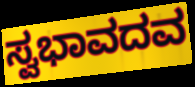
ಸ್ವಭಾವದವ